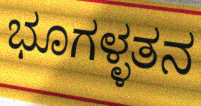
ಭೂಗಳ್ಳತನ